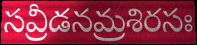
సవ్రీడనమ్రశిరసః